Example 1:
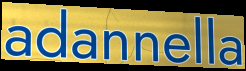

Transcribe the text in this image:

adannella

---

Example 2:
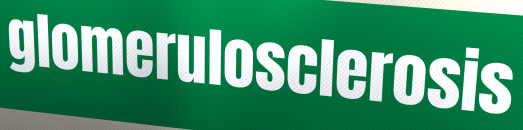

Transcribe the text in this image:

glomerulosclerosis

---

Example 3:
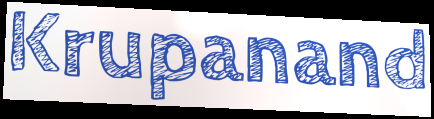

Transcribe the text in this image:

Krupanand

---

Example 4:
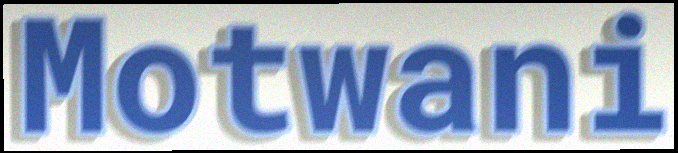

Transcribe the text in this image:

Motwani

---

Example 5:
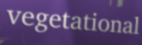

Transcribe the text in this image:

vegetational